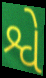
શ્વે